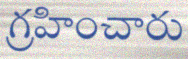
గ్రహించారు